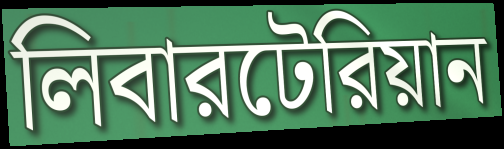
লিবারটেরিয়ান